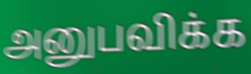
அனுபவிக்க